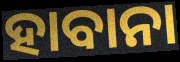
ହାବାନା